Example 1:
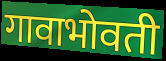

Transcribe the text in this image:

गावाभोवती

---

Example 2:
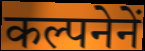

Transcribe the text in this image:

कल्पनेनें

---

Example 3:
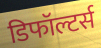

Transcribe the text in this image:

डिफॉल्टर्स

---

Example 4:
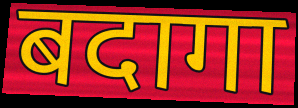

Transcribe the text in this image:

बदागा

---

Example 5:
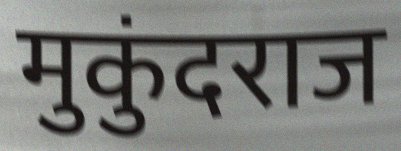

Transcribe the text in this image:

मुकुंदराज